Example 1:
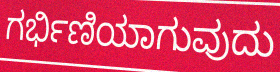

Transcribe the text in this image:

ಗರ್ಭಿಣಿಯಾಗುವುದು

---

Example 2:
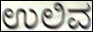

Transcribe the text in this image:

ಉಲಿವ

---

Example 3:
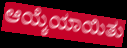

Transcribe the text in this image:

ಆಯ್ಕೆಯಾಯಿತು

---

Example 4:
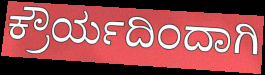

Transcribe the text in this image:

ಕ್ರೌರ್ಯದಿಂದಾಗಿ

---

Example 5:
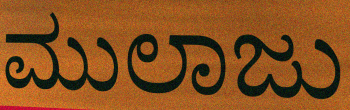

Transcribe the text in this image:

ಮುಲಾಜು